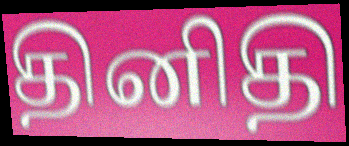
தினிதி